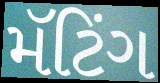
મૅટિંગ